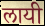
लायी